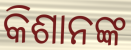
କିଶାନଙ୍କ